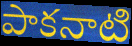
పాకనాటి